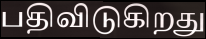
பதிவிடுகிறது